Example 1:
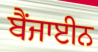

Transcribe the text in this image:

ਬੈਂਜਾਈਨ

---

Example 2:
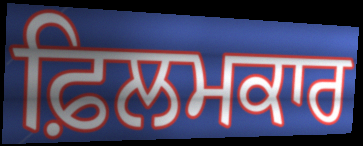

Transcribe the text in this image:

ਫ਼ਿਲਮਕਾਰ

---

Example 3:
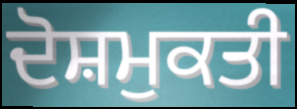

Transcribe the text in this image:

ਦੋਸ਼ਮੁਕਤੀ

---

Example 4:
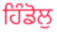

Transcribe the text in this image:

ਹਿੰਡੋਲੁ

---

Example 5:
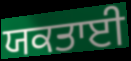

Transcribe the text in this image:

ਯਕਤਾਈ